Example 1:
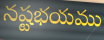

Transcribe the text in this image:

నష్టభయము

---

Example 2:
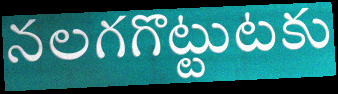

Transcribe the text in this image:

నలగగొట్టుటకు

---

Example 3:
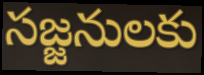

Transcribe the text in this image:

సజ్జనులకు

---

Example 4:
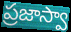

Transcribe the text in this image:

ప్రజాస్వా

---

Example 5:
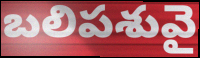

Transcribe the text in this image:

బలిపశువై